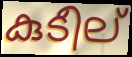
കുടീല്